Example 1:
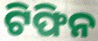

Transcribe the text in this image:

ଟିଫିନ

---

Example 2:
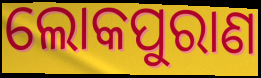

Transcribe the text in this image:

ଲୋକପୁରାଣ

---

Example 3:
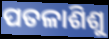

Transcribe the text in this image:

ପତଳାଶିଶୁ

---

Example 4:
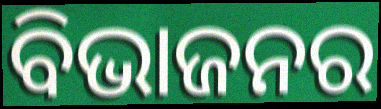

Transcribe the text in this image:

ବିଭାଜନର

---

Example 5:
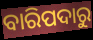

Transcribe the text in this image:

ବାରିପଦାରୁ